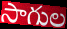
సాగుల